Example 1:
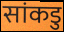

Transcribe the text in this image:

सांकडु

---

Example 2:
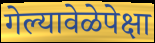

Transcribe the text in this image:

गेल्यावेळेपेक्षा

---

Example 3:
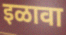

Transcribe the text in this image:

इळावा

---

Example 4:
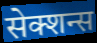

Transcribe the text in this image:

सेक्शन्स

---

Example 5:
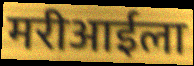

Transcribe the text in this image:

मरीआईला